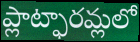
ప్లాట్ఫారమ్లలో